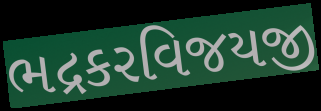
ભદ્રકરવિજયજી